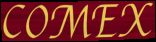
COMEX